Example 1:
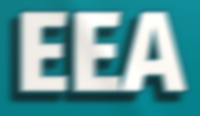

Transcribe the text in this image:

EEA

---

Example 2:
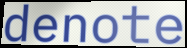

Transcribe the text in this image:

denote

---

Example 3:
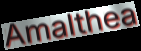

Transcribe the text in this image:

Amalthea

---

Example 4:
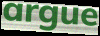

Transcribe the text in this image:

argue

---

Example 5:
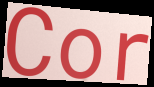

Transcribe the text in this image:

Cor